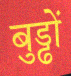
बुड्ढों